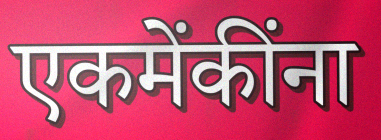
एकमेंकींना